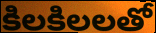
కిలకిలలతో